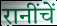
रानींचें